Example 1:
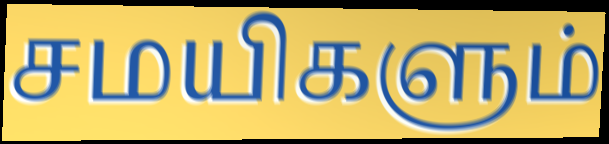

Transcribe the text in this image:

சமயிகளும்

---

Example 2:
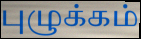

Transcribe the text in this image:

புழுக்கம்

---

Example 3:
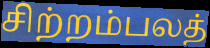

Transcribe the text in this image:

சிற்றம்பலத்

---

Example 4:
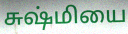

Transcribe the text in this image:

சுஷ்மியை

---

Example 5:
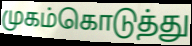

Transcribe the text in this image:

முகம்கொடுத்து